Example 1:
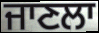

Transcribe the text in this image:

ਜਾਣਲਾ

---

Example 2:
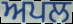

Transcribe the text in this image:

ਅਪਲ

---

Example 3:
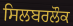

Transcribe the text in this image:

ਸਿਲਬਰਲੌਕ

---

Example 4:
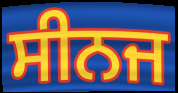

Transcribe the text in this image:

ਸੀਨਜ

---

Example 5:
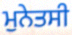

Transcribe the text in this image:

ਮੁਨੇਤਸੀ